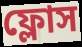
ফ্লোস